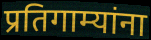
प्रतिगाम्यांना